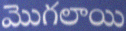
మొగలాయి